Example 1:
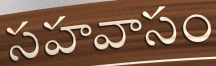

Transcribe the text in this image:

సహవాసం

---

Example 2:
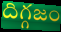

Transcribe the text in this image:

దిగ్గజం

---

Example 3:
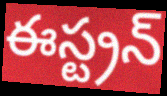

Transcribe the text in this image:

ఈస్ట్రన్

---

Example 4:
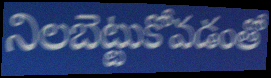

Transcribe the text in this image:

నిలబెట్టుకోవడంతో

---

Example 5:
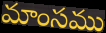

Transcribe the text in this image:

మాంసము